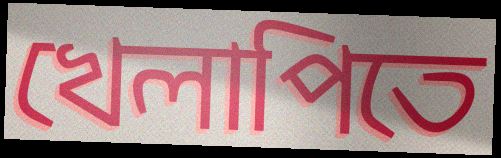
খেলাপিতে